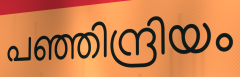
പഞ്ഞിന്ദ്രിയം